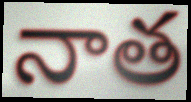
నాత